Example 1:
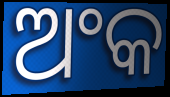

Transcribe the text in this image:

ଅଂକ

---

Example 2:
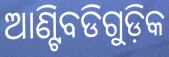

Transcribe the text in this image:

ଆଣ୍ଟିବଡିଗୁଡ଼ିକ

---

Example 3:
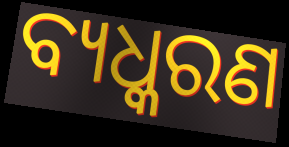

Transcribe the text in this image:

ବ୍ୟଧ୍କରଣ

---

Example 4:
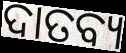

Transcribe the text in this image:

ଦାତବ୍ୟ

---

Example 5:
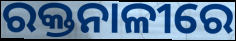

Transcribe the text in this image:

ରକ୍ତନାଳୀରେ